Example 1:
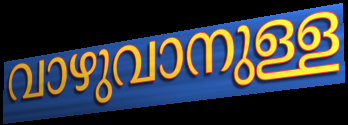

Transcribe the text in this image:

വാഴുവാനുള്ള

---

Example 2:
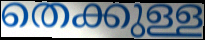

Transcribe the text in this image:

തെക്കുള്ള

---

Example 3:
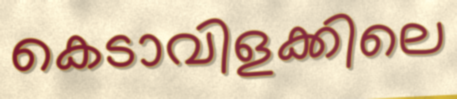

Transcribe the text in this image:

കെടാവിളക്കിലെ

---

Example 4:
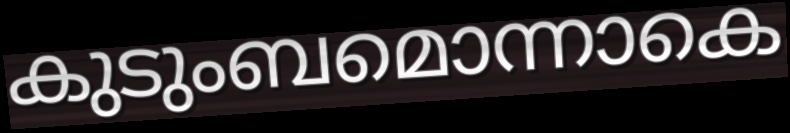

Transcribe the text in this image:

കുടുംബമൊന്നാകെ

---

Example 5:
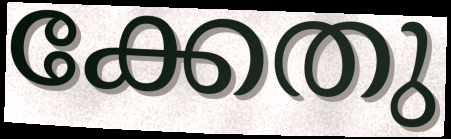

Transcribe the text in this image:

ക്കേതു